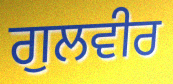
ਗੁਲਵੀਰ